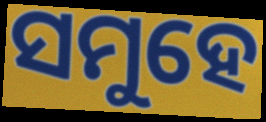
ସମୁହେ